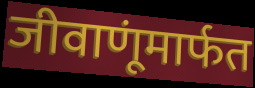
जीवाणूंमार्फत